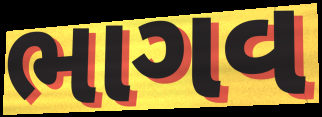
ભાગવ